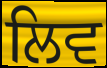
ਲਿਵ